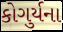
કોગુર્યના